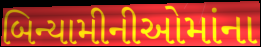
બિન્યામીનીઓમાંના